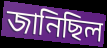
জানিছিল